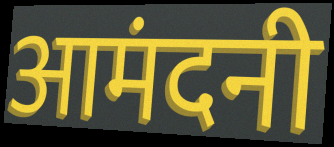
आमंदनी